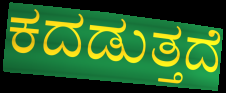
ಕದಡುತ್ತದೆ